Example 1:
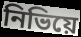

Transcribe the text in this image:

নিভিয়ে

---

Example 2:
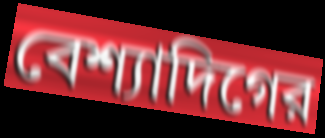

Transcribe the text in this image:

বেশ্যাদিগের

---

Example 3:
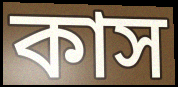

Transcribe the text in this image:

কাস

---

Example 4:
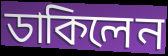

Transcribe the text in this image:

ডাকিলেন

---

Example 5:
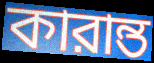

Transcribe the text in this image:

কারান্ত